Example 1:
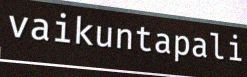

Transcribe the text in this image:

vaikuntapali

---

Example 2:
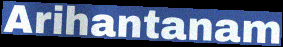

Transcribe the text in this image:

Arihantanam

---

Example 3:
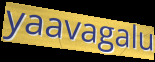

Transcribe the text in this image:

yaavagalu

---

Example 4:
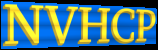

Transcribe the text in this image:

NVHCP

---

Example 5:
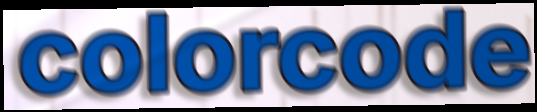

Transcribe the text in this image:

colorcode